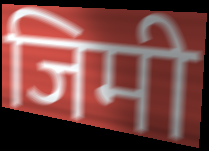
जिमी